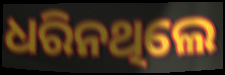
ଧରିନଥିଲେ